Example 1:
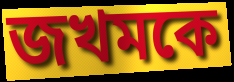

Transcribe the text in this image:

জখমকে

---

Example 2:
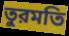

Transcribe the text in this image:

তুরমতি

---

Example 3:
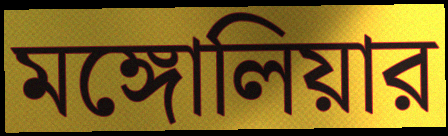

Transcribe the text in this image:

মঙ্গোলিয়ার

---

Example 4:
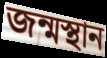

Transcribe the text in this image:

জন্মস্থান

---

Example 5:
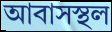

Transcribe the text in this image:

আবাসস্থল